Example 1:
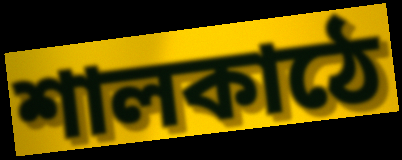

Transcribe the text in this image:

শালকাঠে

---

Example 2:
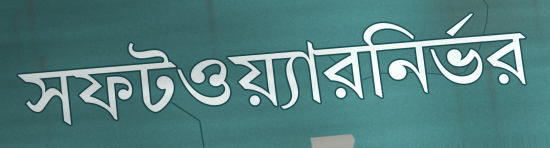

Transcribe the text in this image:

সফটওয়্যারনির্ভর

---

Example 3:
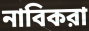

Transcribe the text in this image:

নাবিকরা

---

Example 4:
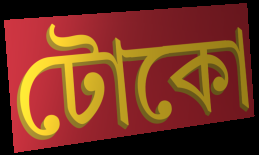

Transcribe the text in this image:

টোকো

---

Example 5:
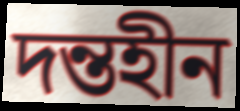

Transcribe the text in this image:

দন্তহীন